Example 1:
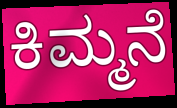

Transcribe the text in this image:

ಕಿಮ್ಮನೆ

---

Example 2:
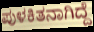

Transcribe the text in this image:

ಪುಳಕಿತನಾಗಿದ್ದೆ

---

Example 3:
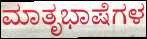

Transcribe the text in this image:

ಮಾತೃಭಾಷೆಗಳ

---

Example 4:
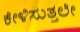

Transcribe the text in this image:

ಕೇಳಿಸುತ್ತಲೇ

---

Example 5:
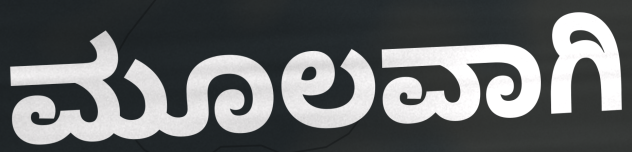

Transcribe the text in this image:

ಮೂಲವಾಗಿ